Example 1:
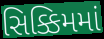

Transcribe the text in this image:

સિક્કિમમાં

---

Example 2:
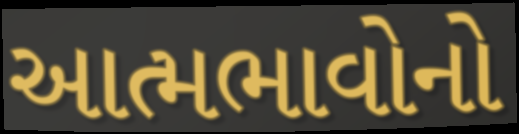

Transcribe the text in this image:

આત્મભાવોનો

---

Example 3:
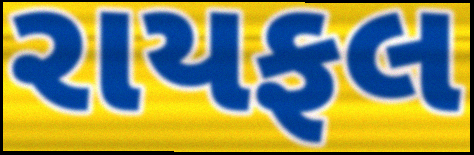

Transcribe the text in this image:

રાયફલ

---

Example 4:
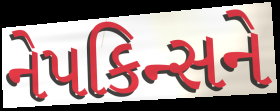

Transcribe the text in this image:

નેપકિન્સને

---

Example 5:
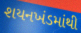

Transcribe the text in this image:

શયનખંડમાંથી